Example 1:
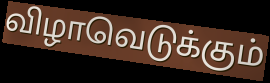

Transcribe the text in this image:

விழாவெடுக்கும்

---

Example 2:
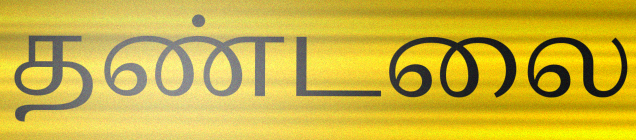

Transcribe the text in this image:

தண்டலை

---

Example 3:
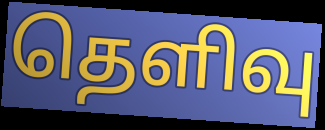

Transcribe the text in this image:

தெளிவு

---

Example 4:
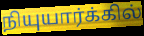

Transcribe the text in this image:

நியுயார்க்கில்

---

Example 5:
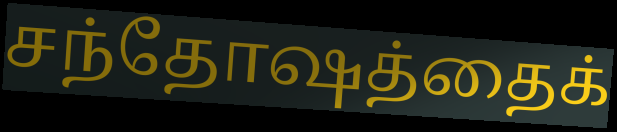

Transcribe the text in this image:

சந்தோஷத்தைக்